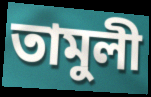
তামুলী